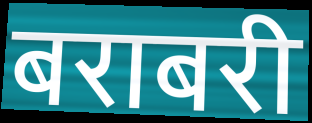
बराबरी